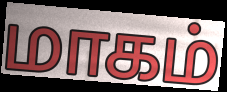
மாகம்